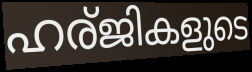
ഹര്ജികളുടെ